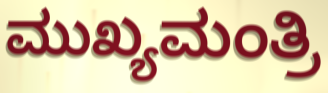
ಮುಖ್ಯಮಂತ್ರಿ